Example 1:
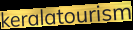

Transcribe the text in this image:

keralatourism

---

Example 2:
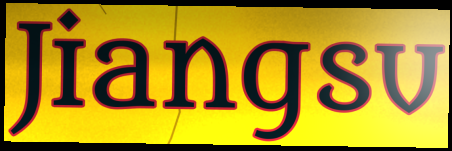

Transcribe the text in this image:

Jiangsu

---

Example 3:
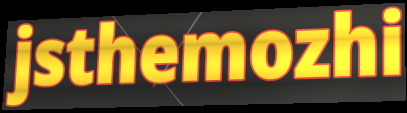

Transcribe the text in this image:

jsthemozhi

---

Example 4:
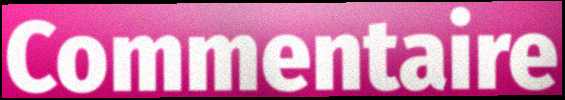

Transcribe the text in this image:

Commentaire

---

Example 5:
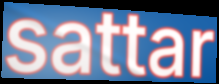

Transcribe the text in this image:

sattar